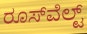
ರೂಸ್‌ವೆಲ್ಟ್